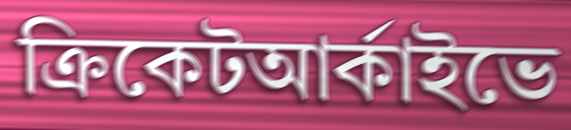
ক্রিকেটআর্কাইভে